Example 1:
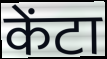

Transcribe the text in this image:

केंटा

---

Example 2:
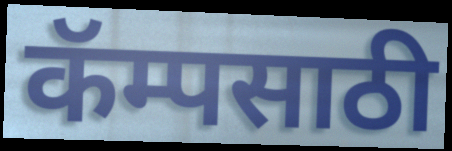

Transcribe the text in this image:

कॅम्पसाठी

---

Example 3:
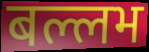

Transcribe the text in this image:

बल्लभ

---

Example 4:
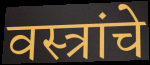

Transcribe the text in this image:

वस्त्रांचे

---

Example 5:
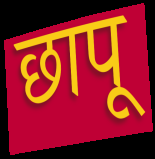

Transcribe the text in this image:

छापू